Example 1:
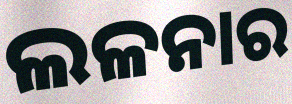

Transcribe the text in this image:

ଲଳନାର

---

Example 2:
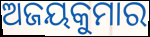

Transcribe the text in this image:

ଅଜୟକୁମାର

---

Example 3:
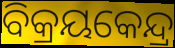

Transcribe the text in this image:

ବିକ୍ରୟକେନ୍ଦ୍ର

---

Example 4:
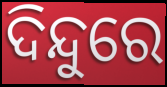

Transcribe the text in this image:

ଦିନ୍ଦୁରେ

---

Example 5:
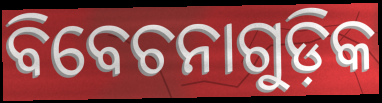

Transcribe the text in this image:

ବିବେଚନାଗୁଡ଼ିକ